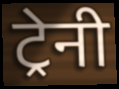
ट्रेनी